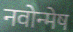
नवोन्‍मेष